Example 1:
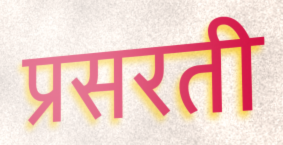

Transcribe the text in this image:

प्रसरती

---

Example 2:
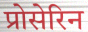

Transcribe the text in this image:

प्रोसेरिन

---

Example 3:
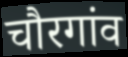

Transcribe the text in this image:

चौरगांव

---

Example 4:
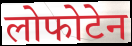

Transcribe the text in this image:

लोफोटेन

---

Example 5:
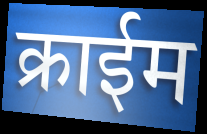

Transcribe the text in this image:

क्राईम